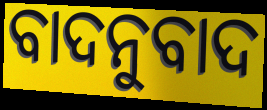
ବାଦନୁବାଦ